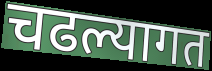
चढल्यागत